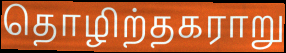
தொழிற்தகராறு